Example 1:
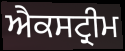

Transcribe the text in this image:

ਐਕਸਟ੍ਰੀਮ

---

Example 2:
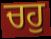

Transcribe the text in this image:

ਚਹੁ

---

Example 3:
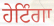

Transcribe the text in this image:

ਹੇਟਿੰਗਾ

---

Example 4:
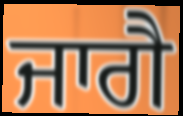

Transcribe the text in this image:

ਜਾਗੈ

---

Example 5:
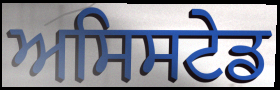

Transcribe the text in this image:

ਅਸਿਸਟੇਡ